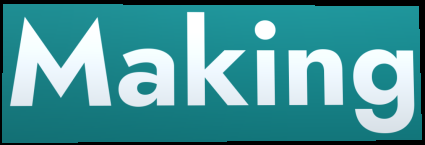
Making